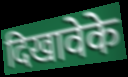
दिखावेके